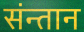
संन्तान